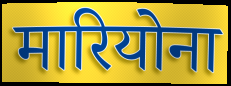
मारियोना